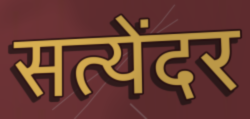
सत्येंदर